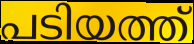
പടിയത്ത്